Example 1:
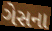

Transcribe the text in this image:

ગેસના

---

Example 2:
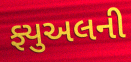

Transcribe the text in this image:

ફ્યુઅલની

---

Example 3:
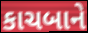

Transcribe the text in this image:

કાચબાને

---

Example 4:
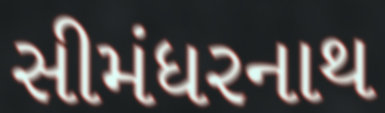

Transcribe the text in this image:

સીમંધરનાથ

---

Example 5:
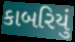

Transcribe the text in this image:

કાબરિયું